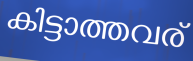
കിട്ടാത്തവര്